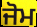
ਜੋਮ